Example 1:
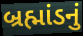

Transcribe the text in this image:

બ્રહ્માંડનું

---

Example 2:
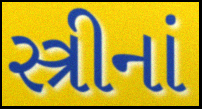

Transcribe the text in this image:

સ્ત્રીનાં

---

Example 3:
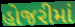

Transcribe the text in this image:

હોજરીમાં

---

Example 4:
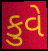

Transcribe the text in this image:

કુવે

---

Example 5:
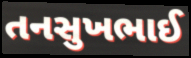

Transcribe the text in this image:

તનસુખભાઈ